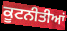
ਕੂਟਨੀਤੀਆਂ